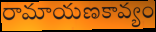
రామాయణకావ్యం